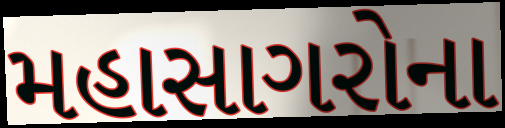
મહાસાગરોના